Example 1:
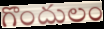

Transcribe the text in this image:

గొందులం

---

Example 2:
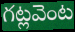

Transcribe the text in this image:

గట్లవెంట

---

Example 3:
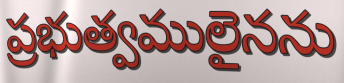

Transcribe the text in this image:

ప్రభుత్వములైనను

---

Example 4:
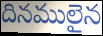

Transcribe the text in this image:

దినములైన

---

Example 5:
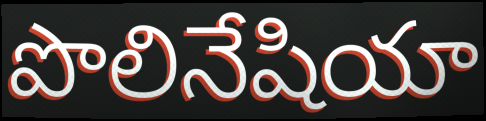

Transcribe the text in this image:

పొలినేషియా